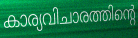
കാര്യവിചാരത്തിന്റെ